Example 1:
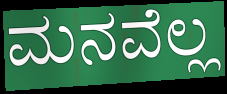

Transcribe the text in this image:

ಮನವೆಲ್ಲ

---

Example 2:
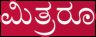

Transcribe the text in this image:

ಮಿತ್ರರೂ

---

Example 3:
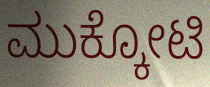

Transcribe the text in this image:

ಮುಕ್ಕೋಟಿ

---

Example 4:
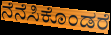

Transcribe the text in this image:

ನೆನೆಸಿಕೊಂಡರೆ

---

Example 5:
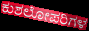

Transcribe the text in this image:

ಕುಶಲೋಪರಿಗಳ